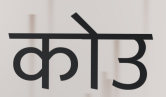
कोउ